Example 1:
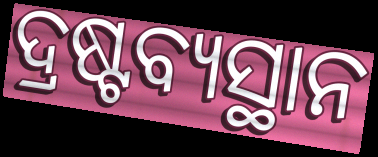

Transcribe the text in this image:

ଦ୍ରଷ୍ଟବ୍ୟସ୍ଥାନ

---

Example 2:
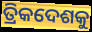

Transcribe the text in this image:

ତ୍ରିକଦେଶକୁ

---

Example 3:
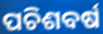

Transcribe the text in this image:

ପଚିଶବର୍ଷ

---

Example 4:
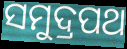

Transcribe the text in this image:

ସମୁଦ୍ରପଥ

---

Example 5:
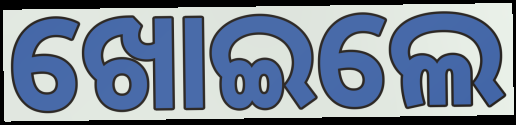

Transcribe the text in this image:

ଖୋଇଲେ